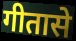
गीतासे